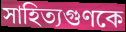
সাহিত্যগুণকে